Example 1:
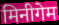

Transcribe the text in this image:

मिनीगेम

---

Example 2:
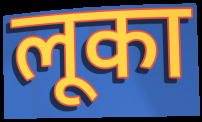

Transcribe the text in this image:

लूका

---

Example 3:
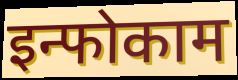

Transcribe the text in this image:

इन्फोकाम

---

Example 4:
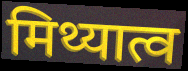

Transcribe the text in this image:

मिथ्यात्व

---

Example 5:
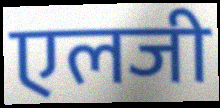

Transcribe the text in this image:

एलजी